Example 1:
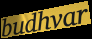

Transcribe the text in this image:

budhvar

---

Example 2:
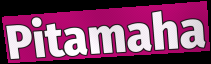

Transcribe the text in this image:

Pitamaha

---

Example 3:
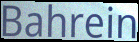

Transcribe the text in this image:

Bahrein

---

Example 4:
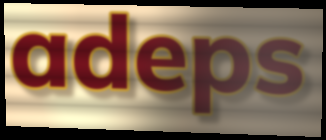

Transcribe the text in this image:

adeps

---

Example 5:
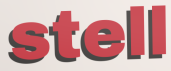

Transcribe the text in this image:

stell